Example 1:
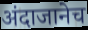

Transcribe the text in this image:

अंदाजानेच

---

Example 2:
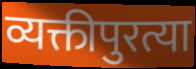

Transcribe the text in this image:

व्यक्तीपुरत्या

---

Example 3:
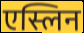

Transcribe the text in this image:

एस्लिन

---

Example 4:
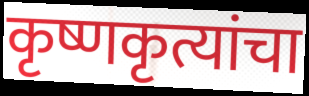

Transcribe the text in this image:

कृष्णकृत्यांचा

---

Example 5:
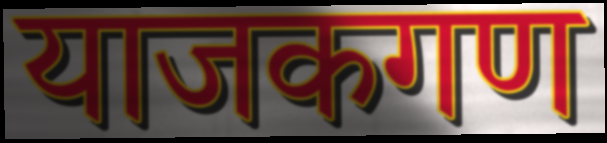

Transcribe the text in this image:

याजकगण